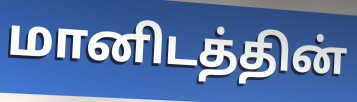
மானிடத்தின்